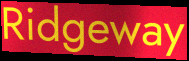
Ridgeway